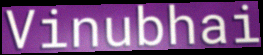
Vinubhai